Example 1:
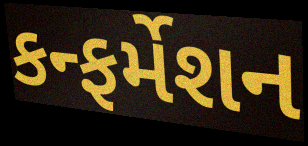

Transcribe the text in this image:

કન્ફર્મેશન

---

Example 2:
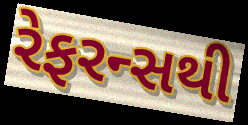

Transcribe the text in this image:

રેફરન્સથી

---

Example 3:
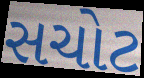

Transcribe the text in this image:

સચોટ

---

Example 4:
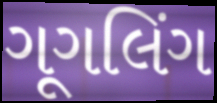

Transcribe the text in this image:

ગૂગલિંગ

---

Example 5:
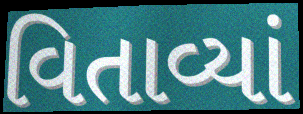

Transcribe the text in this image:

વિતાવ્યાં